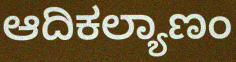
ಆದಿಕಲ್ಯಾಣಂ